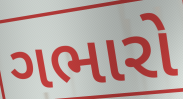
ગભારો